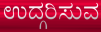
ಉದ್ಗರಿಸುವ